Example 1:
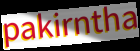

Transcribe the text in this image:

pakirntha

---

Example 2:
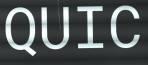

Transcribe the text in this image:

QUIC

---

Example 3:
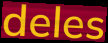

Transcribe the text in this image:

deles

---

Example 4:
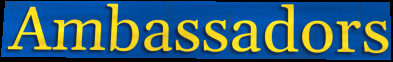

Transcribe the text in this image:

Ambassadors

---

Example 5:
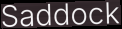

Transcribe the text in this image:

Saddock